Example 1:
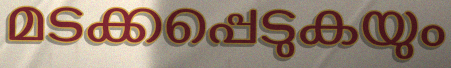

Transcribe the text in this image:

മടക്കപ്പെടുകയും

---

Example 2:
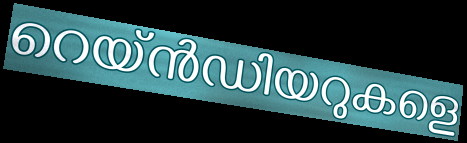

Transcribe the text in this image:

റെയ്ൻഡിയറുകളെ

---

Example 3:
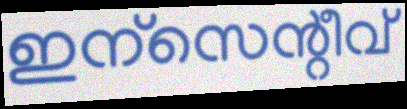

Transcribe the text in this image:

ഇന്സെന്റീവ്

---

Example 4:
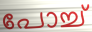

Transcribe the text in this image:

പോച്ച്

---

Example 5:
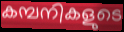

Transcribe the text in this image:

കമ്പനികളുടെ